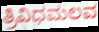
ತ್ರಿವಿಧಮಲವ